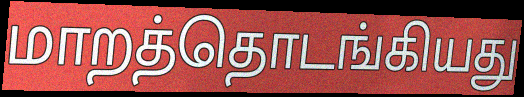
மாறத்தொடங்கியது